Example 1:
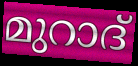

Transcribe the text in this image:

മുറാദ്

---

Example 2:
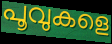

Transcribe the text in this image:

പൂവുകളെ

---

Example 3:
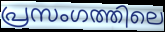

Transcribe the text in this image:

പ്രസംഗത്തിലെ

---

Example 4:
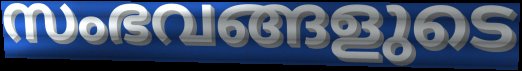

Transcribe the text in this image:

സംഭവങ്ങളുടെ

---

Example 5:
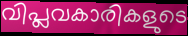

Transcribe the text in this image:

വിപ്ലവകാരികളുടെ